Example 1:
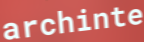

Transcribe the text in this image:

archinte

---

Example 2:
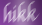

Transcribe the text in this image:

hikk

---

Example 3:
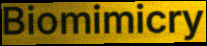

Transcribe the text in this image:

Biomimicry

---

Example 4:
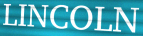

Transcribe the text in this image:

LINCOLN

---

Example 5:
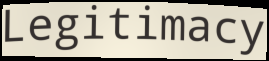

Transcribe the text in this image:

Legitimacy